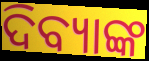
ଦିବ୍ୟାଙ୍କ